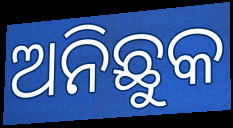
ଅନିଛୁକ